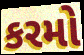
કરમો